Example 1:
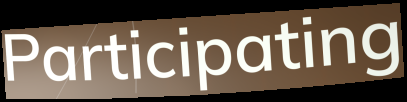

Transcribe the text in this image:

Participating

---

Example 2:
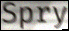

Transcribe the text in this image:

Spry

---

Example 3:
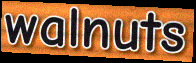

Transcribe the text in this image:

walnuts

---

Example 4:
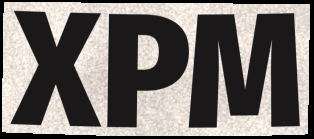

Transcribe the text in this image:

XPM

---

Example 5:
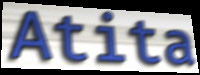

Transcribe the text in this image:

Atita